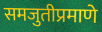
समजुतीप्रमाणे